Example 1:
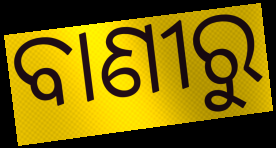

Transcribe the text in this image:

ବାଣୀରୁ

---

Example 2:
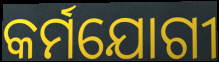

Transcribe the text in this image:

କର୍ମଯୋଗୀ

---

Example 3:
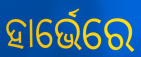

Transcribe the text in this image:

ହାର୍ଭେରେ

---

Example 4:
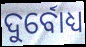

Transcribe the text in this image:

ଦୁର୍ବୋଧ୍ୟ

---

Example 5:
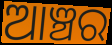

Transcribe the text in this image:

ଆଞ୍ଚର